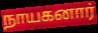
நாயகனார்